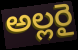
అల్లరై